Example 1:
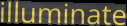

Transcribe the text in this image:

illuminate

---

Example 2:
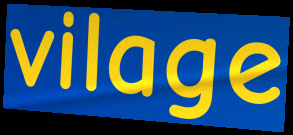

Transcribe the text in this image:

vilage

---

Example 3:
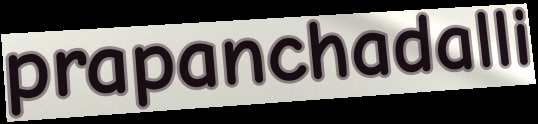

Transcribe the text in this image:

prapanchadalli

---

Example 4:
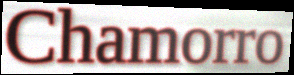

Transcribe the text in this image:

Chamorro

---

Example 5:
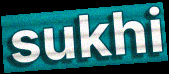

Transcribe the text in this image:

sukhi